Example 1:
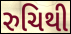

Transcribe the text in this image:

રુચિથી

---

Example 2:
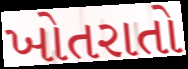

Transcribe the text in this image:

ખોતરાતો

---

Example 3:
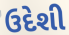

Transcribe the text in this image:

ઉદેશી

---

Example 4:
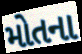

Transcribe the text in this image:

મોતના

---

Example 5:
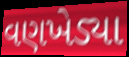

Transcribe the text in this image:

વણખેડ્યા